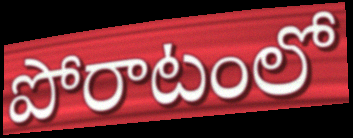
పోరాటంలో